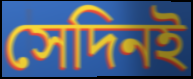
সেদিনই